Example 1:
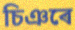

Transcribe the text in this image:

চিঞৰে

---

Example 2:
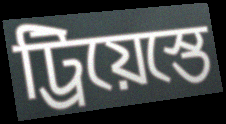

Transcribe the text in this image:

ট্ৰিয়েস্তে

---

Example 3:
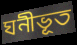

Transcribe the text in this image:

ঘনীভূত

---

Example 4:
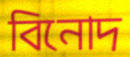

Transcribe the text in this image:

বিনোদ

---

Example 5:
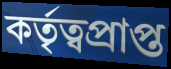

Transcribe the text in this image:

কৰ্তৃত্বপ্ৰাপ্ত